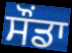
ਸੌਂਡਾ